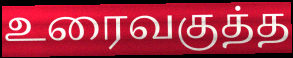
உரைவகுத்த